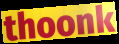
thoonk